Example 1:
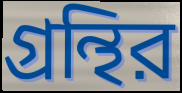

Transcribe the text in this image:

গ্রন্থির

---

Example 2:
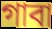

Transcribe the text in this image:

গাবা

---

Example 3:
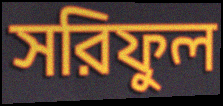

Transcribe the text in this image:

সরিফুল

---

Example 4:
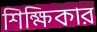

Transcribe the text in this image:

শিক্ষিকার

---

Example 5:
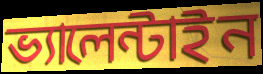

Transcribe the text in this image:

ভ্যালেন্টাইন